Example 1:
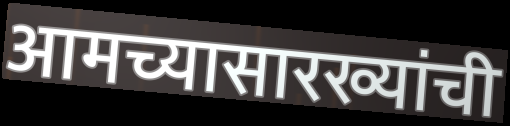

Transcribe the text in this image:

आमच्यासारख्यांची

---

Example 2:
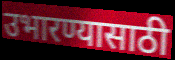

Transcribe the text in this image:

उभारण्यासाठी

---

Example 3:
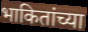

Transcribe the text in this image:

भाकितांच्या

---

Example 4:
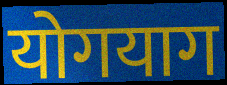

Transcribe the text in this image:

योगयाग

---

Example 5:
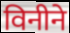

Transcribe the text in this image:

विनीने